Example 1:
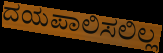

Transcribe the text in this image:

ದಯಪಾಲಿಸಲಿಲ್ಲ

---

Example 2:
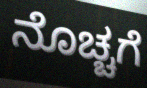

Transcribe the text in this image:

ನೊಚ್ಚಗೆ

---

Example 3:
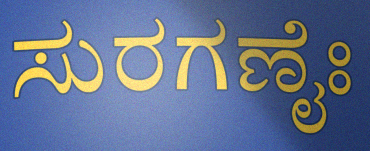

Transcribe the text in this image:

ಸುರಗಣೈಃ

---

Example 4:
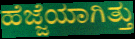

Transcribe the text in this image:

ಹೆಜ್ಜೆಯಾಗಿತ್ತು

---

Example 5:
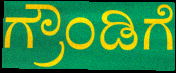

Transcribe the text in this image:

ಗ್ರೌಂಡಿಗೆ